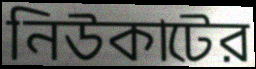
নিউকাটের